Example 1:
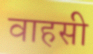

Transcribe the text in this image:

वाहसी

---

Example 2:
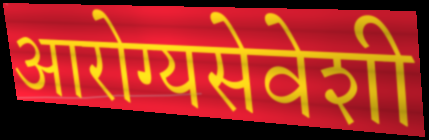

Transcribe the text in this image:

आरोग्यसेवेशी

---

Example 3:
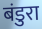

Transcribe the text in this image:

बंडुरा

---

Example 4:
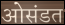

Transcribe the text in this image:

ओसंडत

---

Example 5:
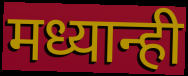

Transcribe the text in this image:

मध्यान्ही